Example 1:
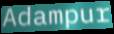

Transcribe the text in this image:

Adampur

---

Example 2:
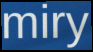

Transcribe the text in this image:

miry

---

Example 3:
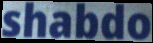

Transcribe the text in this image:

shabdo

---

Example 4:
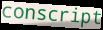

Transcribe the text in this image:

conscript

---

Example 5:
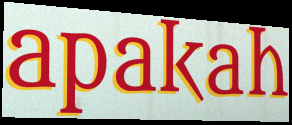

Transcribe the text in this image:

apakah